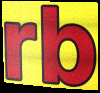
rb